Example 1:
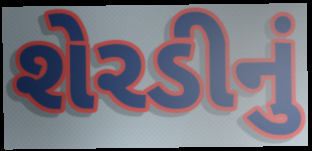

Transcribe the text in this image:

શેરડીનું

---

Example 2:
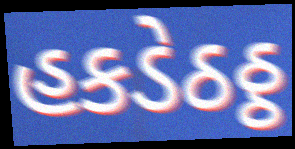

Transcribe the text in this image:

હકડેઠઠ્ઠ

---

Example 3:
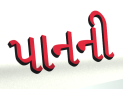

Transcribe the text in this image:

પાનની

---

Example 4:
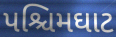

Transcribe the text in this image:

પશ્ચિમઘાટ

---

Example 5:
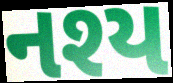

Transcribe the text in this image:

નશ્ય